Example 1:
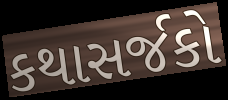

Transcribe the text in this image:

કથાસર્જકો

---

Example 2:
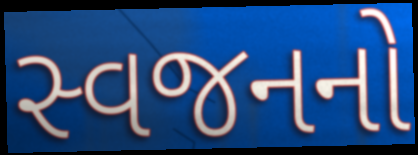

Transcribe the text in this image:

સ્વજનનો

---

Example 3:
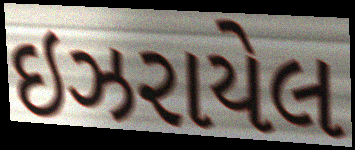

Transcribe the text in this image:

ઇઝરાયેલ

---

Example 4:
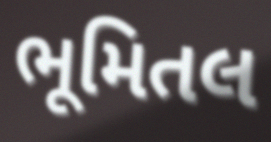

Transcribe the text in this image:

ભૂમિતલ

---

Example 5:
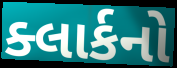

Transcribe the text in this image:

ક્લાર્કનો